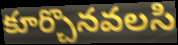
కూర్చొనవలసి